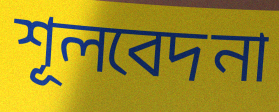
শূলবেদনা